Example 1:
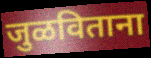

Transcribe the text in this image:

जुळविताना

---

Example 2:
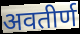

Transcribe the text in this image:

अवतीर्ण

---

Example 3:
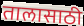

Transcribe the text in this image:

तालासाठी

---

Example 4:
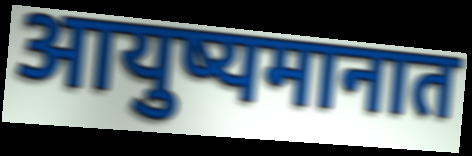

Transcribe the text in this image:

आयुष्यमानात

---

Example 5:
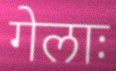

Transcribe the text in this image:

गेलाः